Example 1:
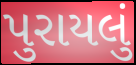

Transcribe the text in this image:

પુરાયલું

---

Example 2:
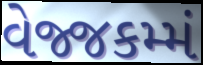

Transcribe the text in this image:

વેજ્જકમ્મં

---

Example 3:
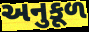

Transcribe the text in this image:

અનુકૂળ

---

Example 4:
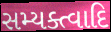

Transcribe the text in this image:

સમ્યક્ત્વાદિ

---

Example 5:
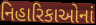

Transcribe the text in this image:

નિહારિકાઓનાં